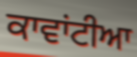
ਕਾਵਾਂਟੀਆ